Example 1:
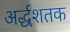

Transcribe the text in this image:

अर्द्धशतक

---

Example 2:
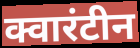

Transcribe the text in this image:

क्वारंटीन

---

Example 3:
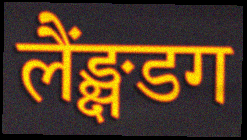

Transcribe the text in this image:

लैंङ्क्षडग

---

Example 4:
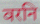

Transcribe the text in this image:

वरनि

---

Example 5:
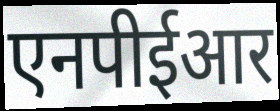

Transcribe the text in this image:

एनपीईआर